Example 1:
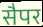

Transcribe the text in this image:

सैपर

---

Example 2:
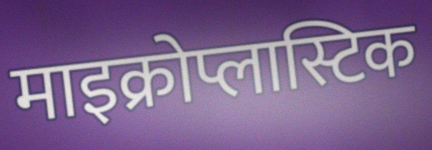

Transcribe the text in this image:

माइक्रोप्लास्टिक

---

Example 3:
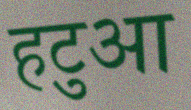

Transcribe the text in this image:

हटुआ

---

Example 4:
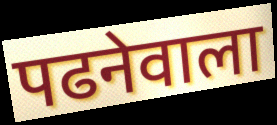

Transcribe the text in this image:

पढनेवाला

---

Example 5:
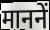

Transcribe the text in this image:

माननें